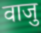
वाजु